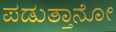
ಪಡುತ್ತಾನೋ